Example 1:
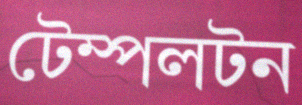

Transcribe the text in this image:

টেম্পলটন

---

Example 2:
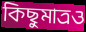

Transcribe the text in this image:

কিছুমাত্রও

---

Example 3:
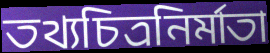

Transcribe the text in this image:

তথ্যচিত্রনির্মাতা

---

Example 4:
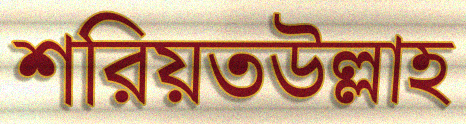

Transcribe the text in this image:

শরিয়তউল্লাহ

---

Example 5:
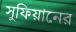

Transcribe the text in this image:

সুফিয়ানের